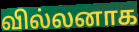
வில்லனாக